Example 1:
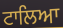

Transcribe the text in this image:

ਟਾਲਿਆ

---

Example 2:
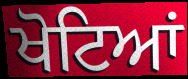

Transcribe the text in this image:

ਖੋਟਿਆਂ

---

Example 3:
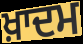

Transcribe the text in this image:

ਖ਼ਾਦਮ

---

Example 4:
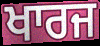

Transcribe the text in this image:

ਖਾਰਜ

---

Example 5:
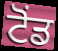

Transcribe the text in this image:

ਟੋਂਡ